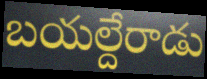
బయల్దేరాడు